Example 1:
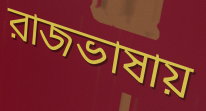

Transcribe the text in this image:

রাজভাষায়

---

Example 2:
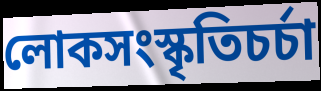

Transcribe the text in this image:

লোকসংস্কৃতিচর্চা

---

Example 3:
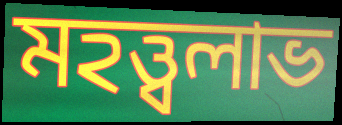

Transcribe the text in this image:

মহত্ত্বলাভ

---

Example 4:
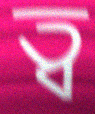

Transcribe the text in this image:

ত্ব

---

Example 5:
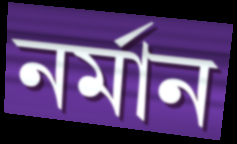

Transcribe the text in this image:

নর্মান